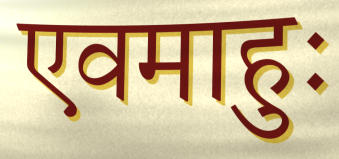
एवमाहुः